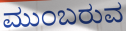
ಮುಂಬರುವ